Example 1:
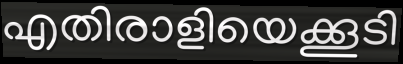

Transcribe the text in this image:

എതിരാളിയെക്കൂടി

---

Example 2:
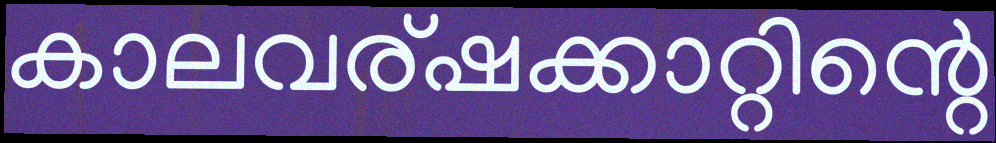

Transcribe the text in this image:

കാലവര്ഷക്കാറ്റിന്റെ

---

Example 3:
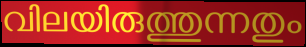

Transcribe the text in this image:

വിലയിരുത്തുന്നതും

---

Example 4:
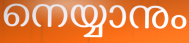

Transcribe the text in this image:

നെയ്യാനും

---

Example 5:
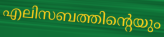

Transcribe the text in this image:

എലിസബത്തിന്റെയും